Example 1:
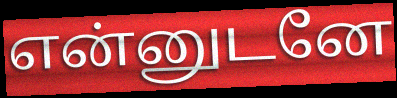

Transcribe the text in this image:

என்னுடனே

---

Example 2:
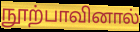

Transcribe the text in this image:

நூற்பாவினால்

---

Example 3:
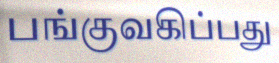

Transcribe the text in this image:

பங்குவகிப்பது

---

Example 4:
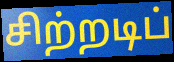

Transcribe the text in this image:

சிற்றடிப்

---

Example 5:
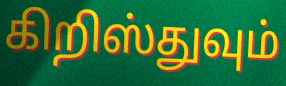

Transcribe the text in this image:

கிறிஸ்துவும்